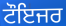
ਟੌਇਜਰ